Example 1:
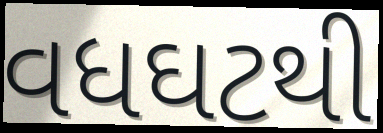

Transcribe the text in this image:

વધઘટથી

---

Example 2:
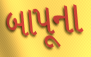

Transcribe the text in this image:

બાપૂના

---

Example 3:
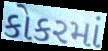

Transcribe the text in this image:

કોકરમાં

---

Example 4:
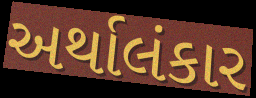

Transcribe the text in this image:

અર્થાલંકાર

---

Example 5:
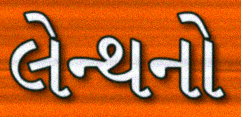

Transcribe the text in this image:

લેન્થનો